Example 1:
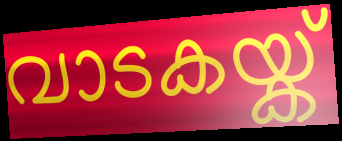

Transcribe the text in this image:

വാടകയ്ക്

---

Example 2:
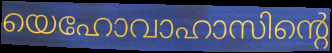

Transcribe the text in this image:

യെഹോവാഹാസിന്റെ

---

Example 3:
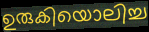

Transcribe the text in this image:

ഉരുകിയൊലിച്ച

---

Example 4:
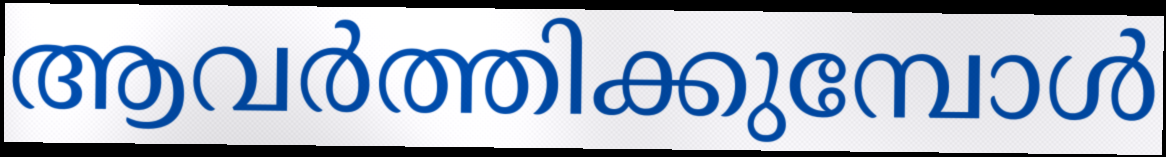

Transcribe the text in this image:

ആവർത്തിക്കുമ്പോൾ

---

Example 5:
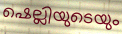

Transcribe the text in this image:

ഷെല്ലിയുടെയും